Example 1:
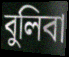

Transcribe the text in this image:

বুলিবা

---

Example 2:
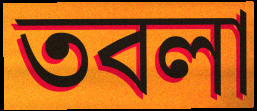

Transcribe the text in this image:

তবলা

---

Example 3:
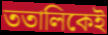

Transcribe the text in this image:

ততালিকেই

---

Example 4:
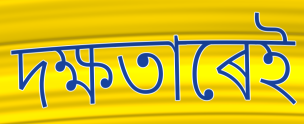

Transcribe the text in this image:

দক্ষতাৰেই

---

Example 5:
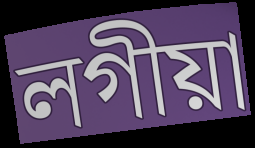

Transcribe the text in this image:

লগীয়া